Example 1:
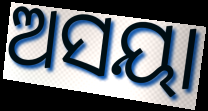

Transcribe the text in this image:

ଅସୟା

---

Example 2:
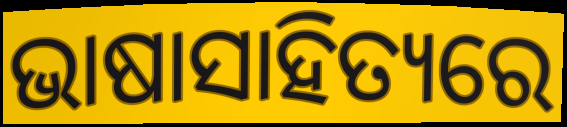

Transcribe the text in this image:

ଭାଷାସାହିତ୍ୟରେ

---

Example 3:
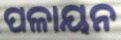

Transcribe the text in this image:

ପଳାୟନ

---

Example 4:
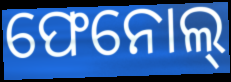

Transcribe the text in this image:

ଫେନୋଲ୍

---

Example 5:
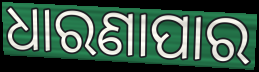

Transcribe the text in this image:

ଧାରଣାପାର